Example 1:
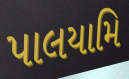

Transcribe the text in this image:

પાલયામિ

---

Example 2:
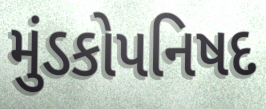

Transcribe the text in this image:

મુંડકોપનિષદ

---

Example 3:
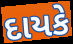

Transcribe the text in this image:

દાયકે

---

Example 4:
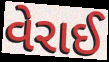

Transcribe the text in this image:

વેરાઈ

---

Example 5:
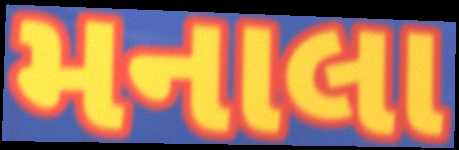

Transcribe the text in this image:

મનાલા